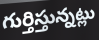
గుర్తిస్తున్నట్లు